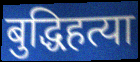
बुद्धिहत्या